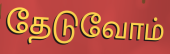
தேடுவோம்